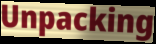
Unpacking